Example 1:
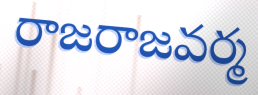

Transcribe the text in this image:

రాజరాజవర్మ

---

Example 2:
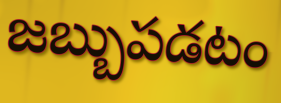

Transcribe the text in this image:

జబ్బుపడటం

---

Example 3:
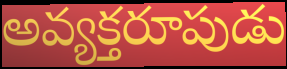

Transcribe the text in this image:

అవ్యక్తరూపుడు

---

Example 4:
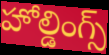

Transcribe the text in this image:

హోల్డింగ్స్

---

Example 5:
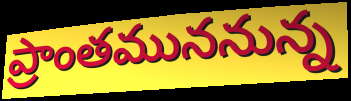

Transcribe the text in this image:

ప్రాంతముననున్న